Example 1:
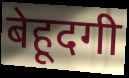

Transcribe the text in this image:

बेहूदगी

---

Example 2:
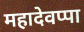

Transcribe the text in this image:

महादेवप्पा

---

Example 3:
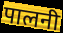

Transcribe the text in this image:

पालनी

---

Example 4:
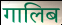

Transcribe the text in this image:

गालिब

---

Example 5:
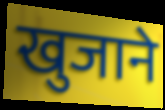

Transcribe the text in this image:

खुजाने